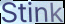
Stink